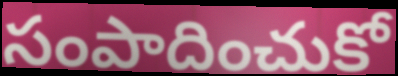
సంపాదించుకో